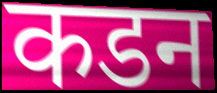
कडन